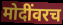
मोदींवरच